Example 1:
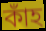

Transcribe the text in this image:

কাঁহ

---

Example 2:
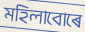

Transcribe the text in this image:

মহিলাবোৰে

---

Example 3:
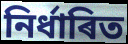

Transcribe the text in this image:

নিৰ্ধাৰিত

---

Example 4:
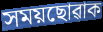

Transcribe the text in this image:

সময়ছোৱাক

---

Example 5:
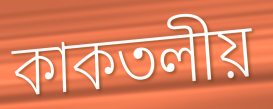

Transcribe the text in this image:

কাকতলীয়